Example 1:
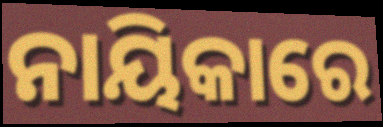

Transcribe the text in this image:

ନାୟିକାରେ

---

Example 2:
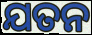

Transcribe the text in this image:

ଯତନ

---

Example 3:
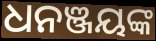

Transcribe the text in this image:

ଧନଞ୍ଜୟଙ୍କ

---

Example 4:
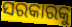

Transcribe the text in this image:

ସରକାରକୁ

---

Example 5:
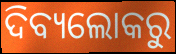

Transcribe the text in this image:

ଦିବ୍ୟଲୋକରୁ